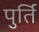
पुर्ति